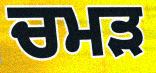
ਚਮੜ